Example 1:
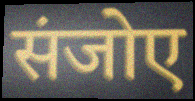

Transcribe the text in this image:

संजोए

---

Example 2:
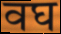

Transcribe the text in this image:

वघ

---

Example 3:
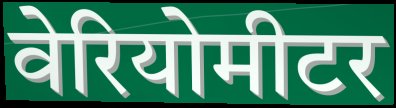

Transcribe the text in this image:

वेरियोमीटर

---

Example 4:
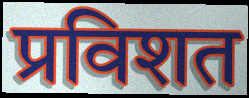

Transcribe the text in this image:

प्रविशत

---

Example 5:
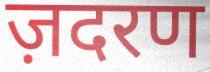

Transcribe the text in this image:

ज़दरण